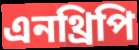
এনথ্রিপি